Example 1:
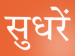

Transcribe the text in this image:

सुधरें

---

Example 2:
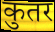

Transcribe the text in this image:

कुतर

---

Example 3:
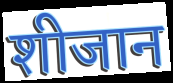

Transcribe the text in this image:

शीजान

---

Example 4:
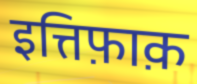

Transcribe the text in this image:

इत्तिफ़ाक़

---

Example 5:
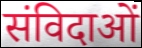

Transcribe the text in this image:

संविदाओं